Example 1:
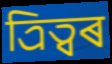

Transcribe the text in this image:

ত্ৰিত্বৰ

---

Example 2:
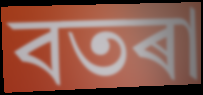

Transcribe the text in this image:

বতৰা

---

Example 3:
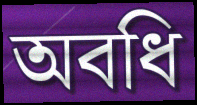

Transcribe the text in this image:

অবধি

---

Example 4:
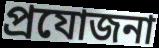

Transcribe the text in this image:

প্ৰযোজনা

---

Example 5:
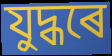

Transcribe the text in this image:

যুদ্ধৰে